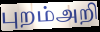
புறம்அறி